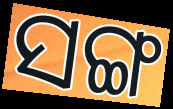
ସଙ୍ଗ